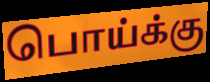
பொய்க்கு